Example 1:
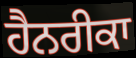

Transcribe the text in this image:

ਹੈਨਰੀਕਾ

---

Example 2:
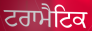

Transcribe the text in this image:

ਟਰਾਮੈਟਿਕ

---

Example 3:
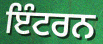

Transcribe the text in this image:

ਇੰਟਰਨ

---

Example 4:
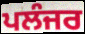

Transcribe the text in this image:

ਪਲੰਜਰ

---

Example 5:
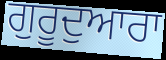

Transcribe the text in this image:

ਗੁਰੂਦੁਆਰਾ